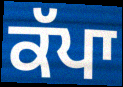
ਕੱਪਾ